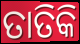
ତାତିକି